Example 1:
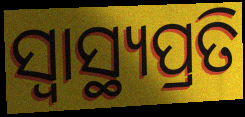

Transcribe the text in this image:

ସ୍ବାସ୍ଥ୍ୟପ୍ରତି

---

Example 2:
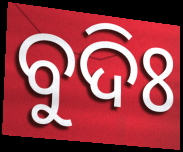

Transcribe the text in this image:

ବୁଦିଃ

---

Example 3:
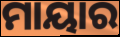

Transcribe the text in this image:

ମାୟାର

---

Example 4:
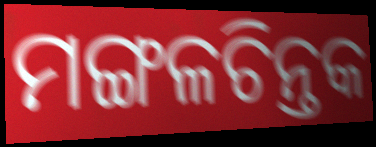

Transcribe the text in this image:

ମଙ୍ଗଳଚିନ୍ତକ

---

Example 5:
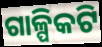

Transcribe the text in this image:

ଗାଳ୍ପିକଟି